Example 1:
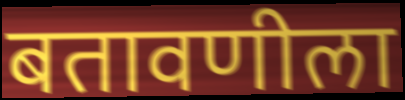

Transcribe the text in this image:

बतावणीला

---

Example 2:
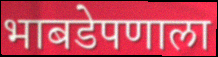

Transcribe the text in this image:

भाबडेपणाला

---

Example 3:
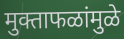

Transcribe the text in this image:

मुक्ताफळांमुळे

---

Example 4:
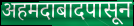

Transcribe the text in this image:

अहमदाबादपासून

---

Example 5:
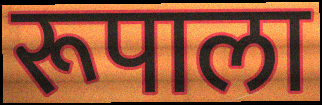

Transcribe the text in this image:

रूपाला